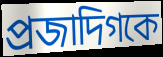
প্রজাদিগকে